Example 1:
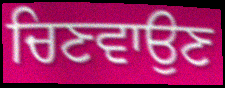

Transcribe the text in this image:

ਚਿਣਵਾਉਣ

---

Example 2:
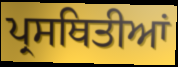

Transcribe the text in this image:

ਪ੍ਰਸਥਿਤੀਆਂ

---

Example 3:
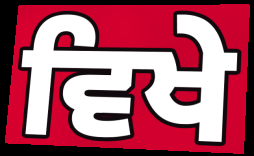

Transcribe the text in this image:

ਵਿਖੇ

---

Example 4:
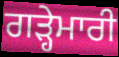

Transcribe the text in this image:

ਗੜ੍ਹੇਮਾਰੀ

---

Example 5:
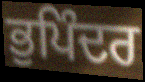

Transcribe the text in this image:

ਭੁਪਿੰਦਰ